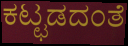
ಕಟ್ಟಡದಂತೆ